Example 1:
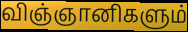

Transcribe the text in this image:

விஞ்ஞானிகளும்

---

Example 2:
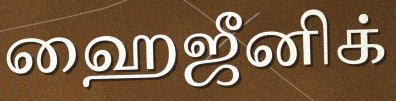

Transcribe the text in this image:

ஹைஜீனிக்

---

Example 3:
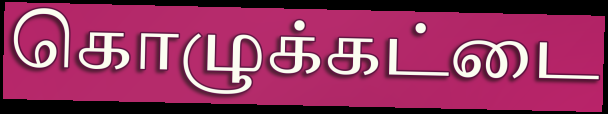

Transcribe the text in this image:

கொழுக்கட்டை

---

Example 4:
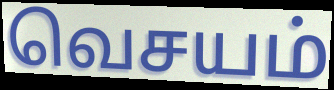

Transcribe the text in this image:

வெசயம்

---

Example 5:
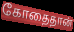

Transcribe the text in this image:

கோதைதான்